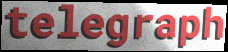
telegraph